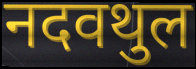
नदवथुल